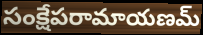
సంక్షేపరామాయణమ్